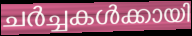
ചർച്ചകൾക്കായി